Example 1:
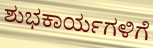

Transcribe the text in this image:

ಶುಭಕಾರ್ಯಗಳಿಗೆ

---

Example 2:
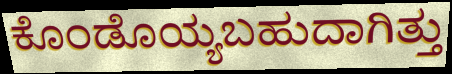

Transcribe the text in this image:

ಕೊಂಡೊಯ್ಯಬಹುದಾಗಿತ್ತು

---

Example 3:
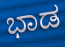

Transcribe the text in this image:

ಭಾಡ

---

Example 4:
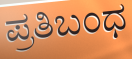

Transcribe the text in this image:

ಪ್ರತಿಬಂಧ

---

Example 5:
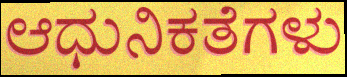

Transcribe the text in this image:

ಆಧುನಿಕತೆಗಳು